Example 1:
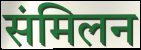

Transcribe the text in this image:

संमिलन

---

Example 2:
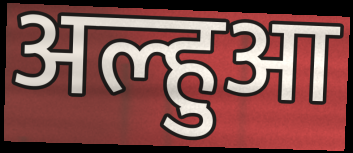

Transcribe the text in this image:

अल्हुआ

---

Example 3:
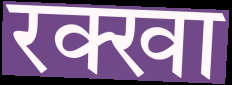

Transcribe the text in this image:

रक्खा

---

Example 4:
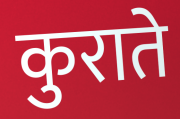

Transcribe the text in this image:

कुराते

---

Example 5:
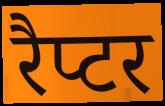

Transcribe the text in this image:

रैप्टर